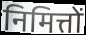
निमित्तों